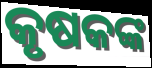
କୃଷକଙ୍କ